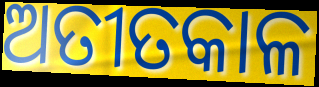
ଅତୀତକାଳ